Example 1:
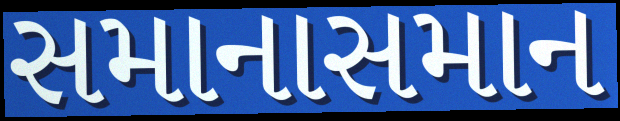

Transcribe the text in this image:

સમાનાસમાન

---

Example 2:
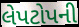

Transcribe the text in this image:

લેપટોપની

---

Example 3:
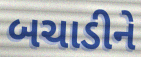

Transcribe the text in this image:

બચાડીને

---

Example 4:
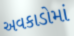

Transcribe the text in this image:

અવકાડોમાં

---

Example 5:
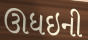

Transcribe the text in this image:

ઊધઇની